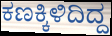
ಕಣಕ್ಕಿಳಿದಿದ್ದ